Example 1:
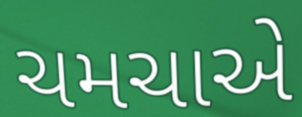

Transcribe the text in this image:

ચમચાએ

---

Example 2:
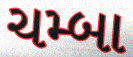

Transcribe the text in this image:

ચમ્બા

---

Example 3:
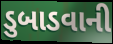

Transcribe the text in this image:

ડુબાડવાની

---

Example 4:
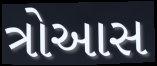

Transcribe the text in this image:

ત્રોઆસ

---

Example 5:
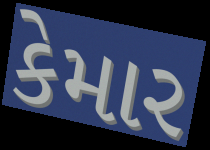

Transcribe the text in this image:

કેમાર